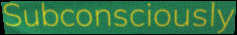
Subconsciously